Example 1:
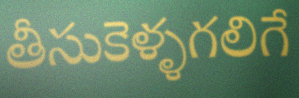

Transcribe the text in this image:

తీసుకెళ్ళగలిగే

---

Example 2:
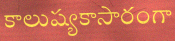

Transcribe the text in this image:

కాలుష్యకాసారంగా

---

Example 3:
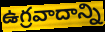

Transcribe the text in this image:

ఉగ్రవాదాన్ని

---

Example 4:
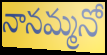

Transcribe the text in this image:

నానమ్మనో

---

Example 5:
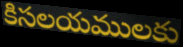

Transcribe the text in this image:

కిసలయములకు